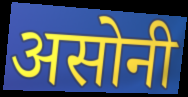
असोनी